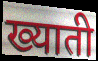
ख्याती